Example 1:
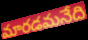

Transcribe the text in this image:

మారడమనేది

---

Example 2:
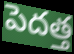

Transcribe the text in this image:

పెదత్త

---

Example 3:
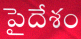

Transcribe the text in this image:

పైదేశం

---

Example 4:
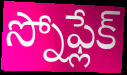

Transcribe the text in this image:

స్నోఫ్లేక్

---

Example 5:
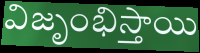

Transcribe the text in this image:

విజృంభిస్తాయి